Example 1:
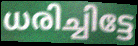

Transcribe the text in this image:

ധരിച്ചിട്ടേ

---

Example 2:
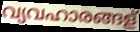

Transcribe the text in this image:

വ്യവഹാരങ്ങള്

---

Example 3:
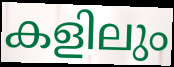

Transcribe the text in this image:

കളിലും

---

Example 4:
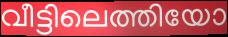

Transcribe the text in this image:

വീട്ടിലെത്തിയോ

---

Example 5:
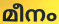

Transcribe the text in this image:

മീനം